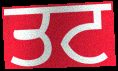
ਤਟ